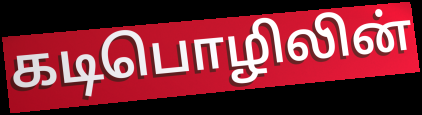
கடிபொழிலின்